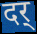
दर्